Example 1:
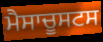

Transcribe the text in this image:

ਮੈਸਾਚੂਸਟਸ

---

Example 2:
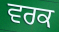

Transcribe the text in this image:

ਵਰਕ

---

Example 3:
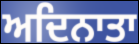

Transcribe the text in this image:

ਅਦਿਨਾਤਾ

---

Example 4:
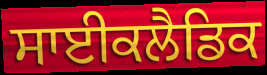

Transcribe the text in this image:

ਸਾਈਕਲੈਡਿਕ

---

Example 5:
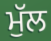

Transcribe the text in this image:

ਮੁੱਲ